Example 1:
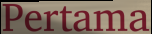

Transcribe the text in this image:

Pertama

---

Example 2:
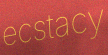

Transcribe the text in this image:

ecstacy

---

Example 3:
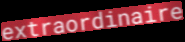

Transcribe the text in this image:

extraordinaire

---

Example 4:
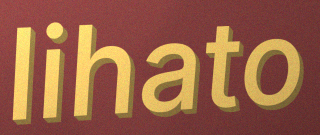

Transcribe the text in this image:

lihato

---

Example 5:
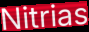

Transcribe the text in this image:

Nitrias